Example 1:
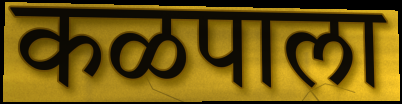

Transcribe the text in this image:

कळपाला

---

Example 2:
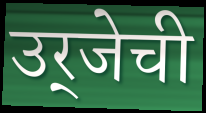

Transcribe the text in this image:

उर्जेची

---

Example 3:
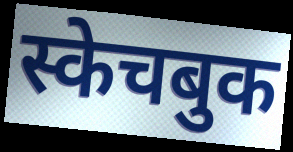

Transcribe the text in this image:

स्केचबुक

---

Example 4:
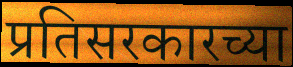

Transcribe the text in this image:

प्रतिसरकारच्या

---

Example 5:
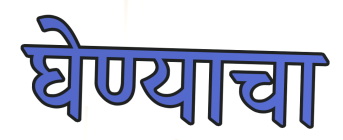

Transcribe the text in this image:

घेण्याचा